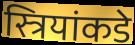
स्त्रियांकडे